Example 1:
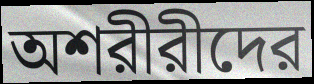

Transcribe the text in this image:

অশরীরীদের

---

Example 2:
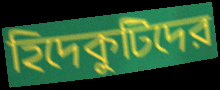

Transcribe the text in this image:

হিদেকুটিদের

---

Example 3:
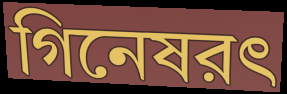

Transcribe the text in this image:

গিনেষরৎ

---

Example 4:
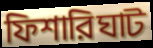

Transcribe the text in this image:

ফিশারিঘাট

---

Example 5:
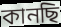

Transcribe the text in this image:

কানছি